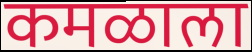
कमळाला